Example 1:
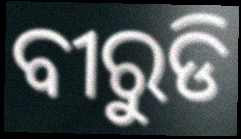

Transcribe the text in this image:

ବୀରୁଡି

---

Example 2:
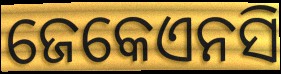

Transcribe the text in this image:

ଜେକେଏନସି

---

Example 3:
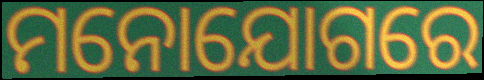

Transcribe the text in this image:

ମନୋଯୋଗରେ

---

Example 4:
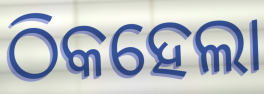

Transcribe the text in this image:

ଠିକହେଲା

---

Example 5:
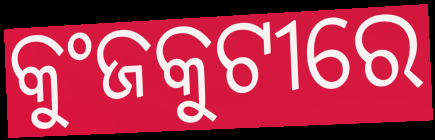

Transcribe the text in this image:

କୁଂଜକୁଟୀରେ